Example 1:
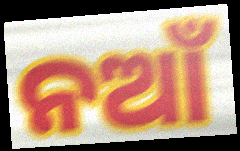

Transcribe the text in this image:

ନଆଁ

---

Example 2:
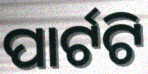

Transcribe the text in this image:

ପାର୍ଟଟି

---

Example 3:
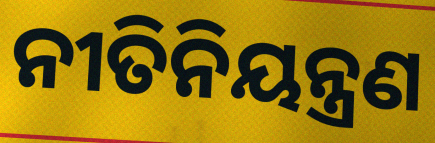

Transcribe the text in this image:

ନୀତିନିୟନ୍ତ୍ରଣ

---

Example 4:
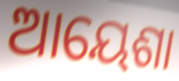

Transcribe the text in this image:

ଆୟେଶା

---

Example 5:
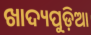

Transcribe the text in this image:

ଖାଦ୍ୟପୁଡ଼ିଆ